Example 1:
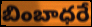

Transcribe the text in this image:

బింబాధరే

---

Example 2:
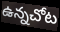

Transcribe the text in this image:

ఉన్నచోట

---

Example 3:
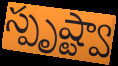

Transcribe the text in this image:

స్పృష్ట్వా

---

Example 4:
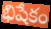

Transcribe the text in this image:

భిషేకం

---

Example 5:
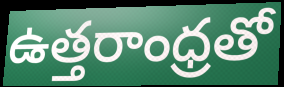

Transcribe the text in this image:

ఉత్తరాంధ్రతో